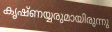
കൃഷ്ണയ്യരുമായിരുന്നു